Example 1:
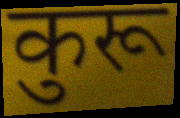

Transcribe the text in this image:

कुरू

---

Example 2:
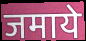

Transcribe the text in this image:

जमाये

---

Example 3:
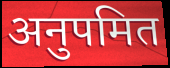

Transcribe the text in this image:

अनुपमित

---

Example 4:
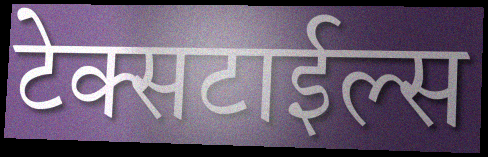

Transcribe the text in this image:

टेक्सटाईल्स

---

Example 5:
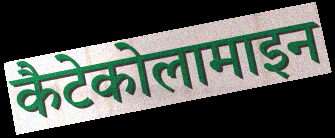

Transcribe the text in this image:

कैटेकोलामाइन